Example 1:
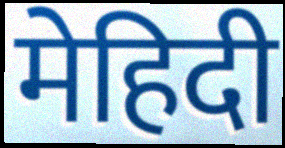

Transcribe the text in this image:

मेहिदी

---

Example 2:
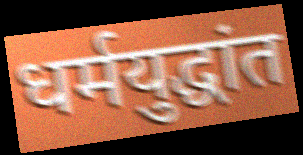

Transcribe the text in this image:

धर्मयुद्धांत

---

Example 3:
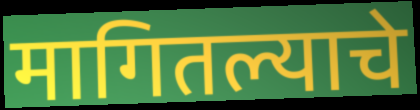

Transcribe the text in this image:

मागितल्याचे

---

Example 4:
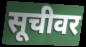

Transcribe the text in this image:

सूचीवर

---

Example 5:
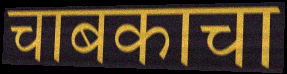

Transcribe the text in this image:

चाबकाचा